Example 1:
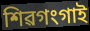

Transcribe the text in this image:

শিৱগংগাই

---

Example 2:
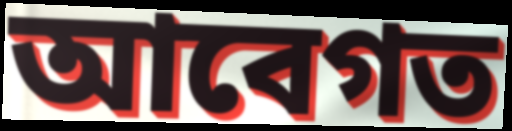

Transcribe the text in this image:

আবেগত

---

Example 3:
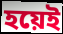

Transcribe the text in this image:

হয়েই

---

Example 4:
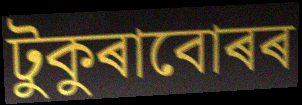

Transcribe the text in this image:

টুকুৰাবোৰৰ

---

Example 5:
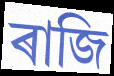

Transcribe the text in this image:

ৰাজি